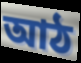
আঠ